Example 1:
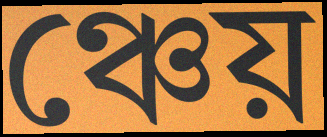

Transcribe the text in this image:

ঞ্চেয়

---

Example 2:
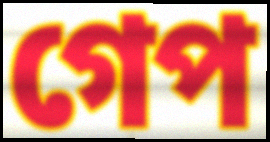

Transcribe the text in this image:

গেপ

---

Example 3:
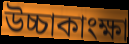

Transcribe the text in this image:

উচ্চাকাংক্ষা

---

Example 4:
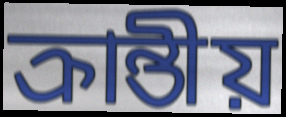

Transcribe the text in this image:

ক্ৰান্তীয়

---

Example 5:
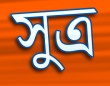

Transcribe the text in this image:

সুত্ৰ